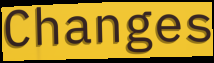
Changes